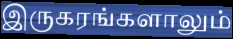
இருகரங்களாலும்